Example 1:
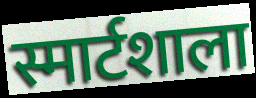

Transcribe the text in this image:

स्मार्टशाला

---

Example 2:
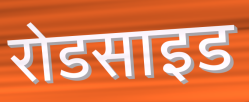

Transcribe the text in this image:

रोडसाइड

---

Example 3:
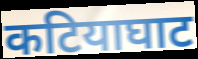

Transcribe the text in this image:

कटियाघाट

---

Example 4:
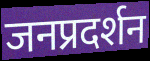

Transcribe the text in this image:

जनप्रदर्शन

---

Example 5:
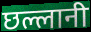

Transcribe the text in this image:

छल्लानी